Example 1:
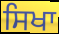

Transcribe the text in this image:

ਸਿਖਾ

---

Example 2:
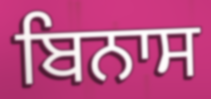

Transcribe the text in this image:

ਬਿਨਾਸ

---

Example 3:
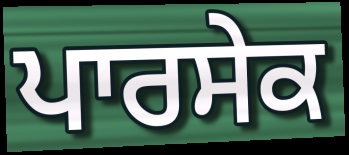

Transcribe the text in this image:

ਪਾਰਸੇਕ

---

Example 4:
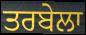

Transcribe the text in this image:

ਤਰਬੇਲਾ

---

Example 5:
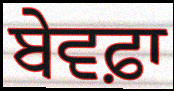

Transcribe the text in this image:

ਬੇਵਫ਼ਾ